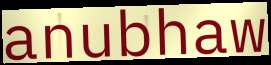
anubhaw